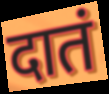
दातं